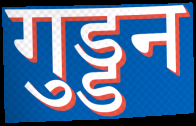
गुड्डन